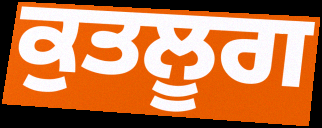
ਕੁਤਲੂਗ